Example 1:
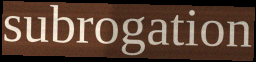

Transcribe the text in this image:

subrogation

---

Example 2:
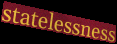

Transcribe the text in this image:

statelessness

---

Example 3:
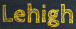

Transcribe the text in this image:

Lehigh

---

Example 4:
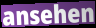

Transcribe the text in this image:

ansehen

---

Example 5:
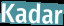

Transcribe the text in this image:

Kadar